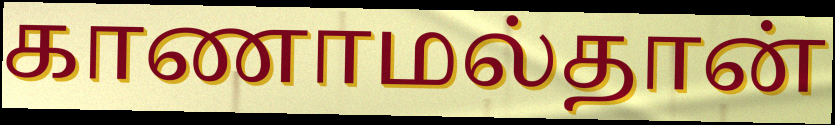
காணாமல்தான்